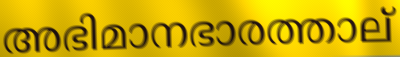
അഭിമാനഭാരത്താല്